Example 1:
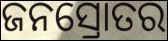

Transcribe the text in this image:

ଜନସ୍ରୋତର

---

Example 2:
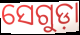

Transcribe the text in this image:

ସେଗୁଡ଼ା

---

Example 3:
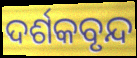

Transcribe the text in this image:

ଦର୍ଶକବୃନ୍ଦ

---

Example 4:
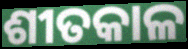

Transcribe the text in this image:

ଶୀତକାଳ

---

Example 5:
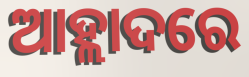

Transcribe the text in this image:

ଆହ୍ଲାଦରେ